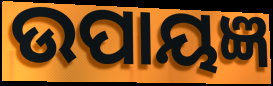
ଉପାୟଜ୍ଞ